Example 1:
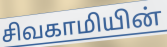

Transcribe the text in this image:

சிவகாமியின்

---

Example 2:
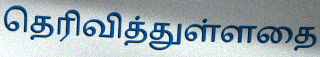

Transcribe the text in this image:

தெரிவித்துள்ளதை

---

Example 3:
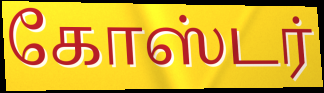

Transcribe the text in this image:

கோஸ்டர்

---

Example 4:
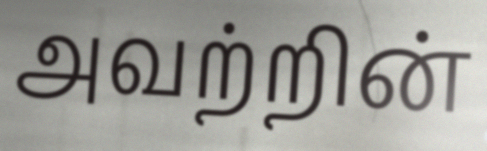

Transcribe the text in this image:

அவற்றின்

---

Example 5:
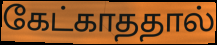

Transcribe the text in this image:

கேட்காததால்